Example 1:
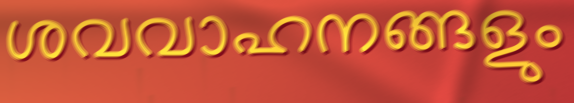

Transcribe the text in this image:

ശവവാഹനങ്ങളും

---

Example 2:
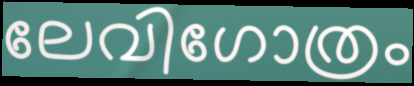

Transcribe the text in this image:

ലേവിഗോത്രം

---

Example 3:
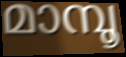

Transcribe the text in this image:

മാമ്പൂ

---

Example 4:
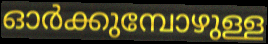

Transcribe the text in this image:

ഓർക്കുമ്പോഴുള്ള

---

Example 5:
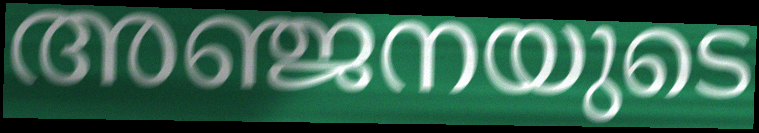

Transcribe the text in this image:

അഞ്ജനയുടെ